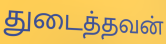
துடைத்தவன்